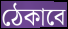
ঠেকাবে